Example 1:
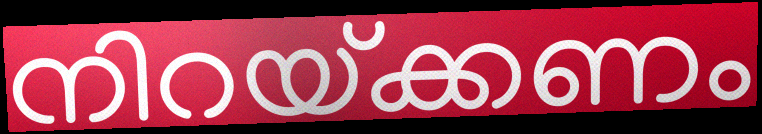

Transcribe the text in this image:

നിറയ്‌ക്കണം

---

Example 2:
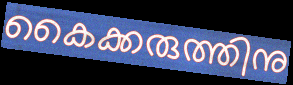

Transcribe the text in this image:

കൈക്കരുത്തിനു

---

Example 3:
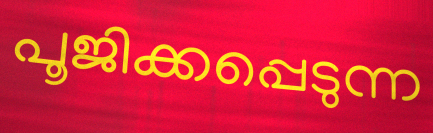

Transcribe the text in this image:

പൂജിക്കപ്പെടുന്ന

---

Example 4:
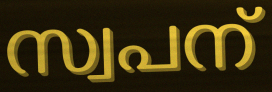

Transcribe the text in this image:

സ്വപന്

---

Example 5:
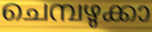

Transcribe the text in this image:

ചെമ്പഴുക്കാ